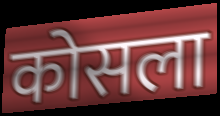
कोसला